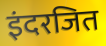
इंदरजित